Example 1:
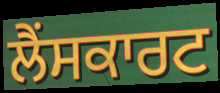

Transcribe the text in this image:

ਲੈਂਸਕਾਰਟ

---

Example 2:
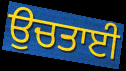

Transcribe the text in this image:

ਉਚਤਾਈ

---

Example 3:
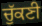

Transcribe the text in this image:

ਚੁੱਕਣੀ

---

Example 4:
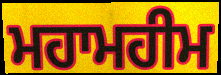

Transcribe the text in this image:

ਮਹਾਮਹੀਮ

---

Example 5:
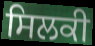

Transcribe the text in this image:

ਸਿਲਕੀ